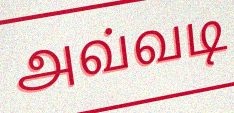
அவ்வடி